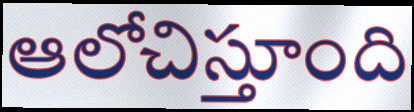
ఆలోచిస్తూంది